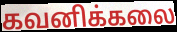
கவனிக்கலை